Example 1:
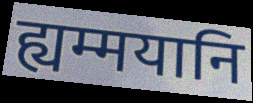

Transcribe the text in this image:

ह्यम्मयानि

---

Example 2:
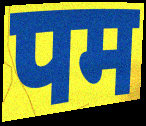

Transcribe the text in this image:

पम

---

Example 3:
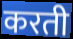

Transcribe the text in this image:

करती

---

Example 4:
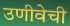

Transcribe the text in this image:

उणीवेची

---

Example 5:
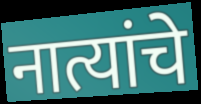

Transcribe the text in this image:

नात्यांचे